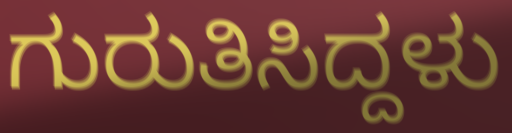
ಗುರುತಿಸಿದ್ದಳು